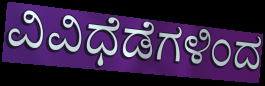
ವಿವಿಧೆಡೆಗಳಿಂದ